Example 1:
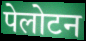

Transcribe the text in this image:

पेलोटन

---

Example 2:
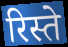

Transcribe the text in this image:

रिस्ते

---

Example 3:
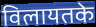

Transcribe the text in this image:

विलायतके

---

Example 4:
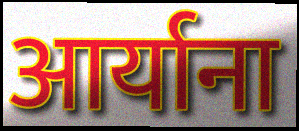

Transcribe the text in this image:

आर्याना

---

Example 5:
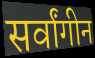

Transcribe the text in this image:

सर्वांगीन